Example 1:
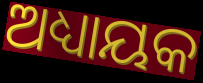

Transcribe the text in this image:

ଅଧ୍ୟାୟକ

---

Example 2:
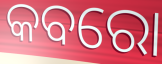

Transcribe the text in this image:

କବରୋ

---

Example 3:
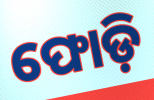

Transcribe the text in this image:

ଫୋଡ଼ି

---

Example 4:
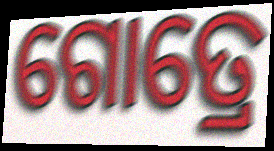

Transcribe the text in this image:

ଗୋତ୍ରେ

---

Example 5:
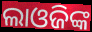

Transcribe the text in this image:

ଲାଓଜିଙ୍କ